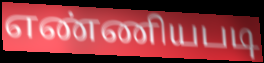
எண்ணியபடி